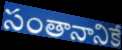
సంతానానికే